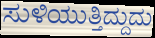
ಸುಳಿಯುತ್ತಿದ್ದುದು